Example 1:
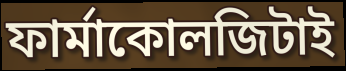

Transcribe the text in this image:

ফার্মাকোলজিটাই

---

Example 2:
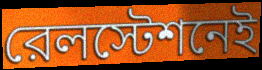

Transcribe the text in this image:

রেলস্টেশনেই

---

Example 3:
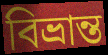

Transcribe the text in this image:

বিভ্রান্ত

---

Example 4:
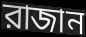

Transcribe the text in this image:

রাজান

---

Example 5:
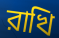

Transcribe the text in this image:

রাখি